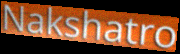
Nakshatro